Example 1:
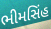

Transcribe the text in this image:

ભીમસિંહ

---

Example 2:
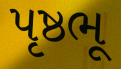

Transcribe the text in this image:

પૃષ્ઠભૂ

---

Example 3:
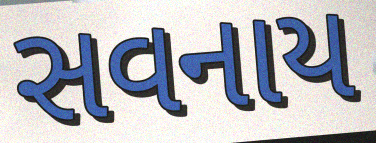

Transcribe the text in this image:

સવનાય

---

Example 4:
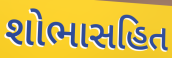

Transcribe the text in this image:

શોભાસહિત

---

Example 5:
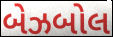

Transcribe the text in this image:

બેઝબોલ